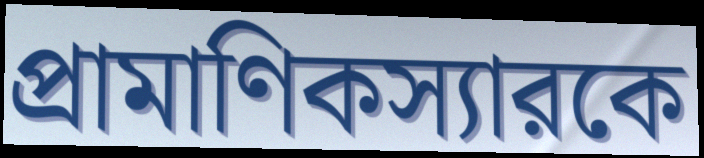
প্রামাণিকস্যারকে